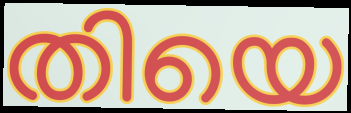
തിയെ